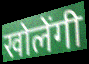
खोलेंगी